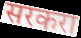
सरकरा